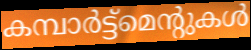
കമ്പാർട്ട്മെന്റുകൾ